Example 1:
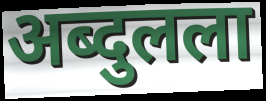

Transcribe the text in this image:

अब्दुलला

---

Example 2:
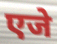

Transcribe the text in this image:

एजे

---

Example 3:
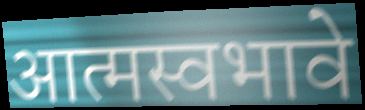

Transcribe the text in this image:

आत्मस्वभावे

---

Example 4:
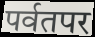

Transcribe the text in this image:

पर्वतपर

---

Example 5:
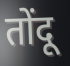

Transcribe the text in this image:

तोंदू